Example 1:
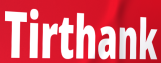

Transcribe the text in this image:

Tirthank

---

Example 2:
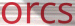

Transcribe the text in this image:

orcs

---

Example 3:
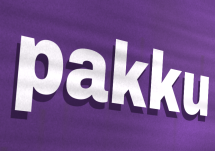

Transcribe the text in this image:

pakku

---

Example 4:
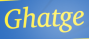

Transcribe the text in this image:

Ghatge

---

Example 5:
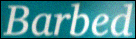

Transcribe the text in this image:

Barbed